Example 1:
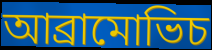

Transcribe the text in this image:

আব্রামোভিচ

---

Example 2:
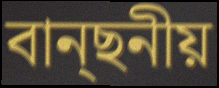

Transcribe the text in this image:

বান্ছনীয়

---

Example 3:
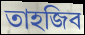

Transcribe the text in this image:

তাহজিব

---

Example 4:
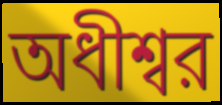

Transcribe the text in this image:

অধীশ্বর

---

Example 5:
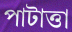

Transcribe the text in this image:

পাটাত্তা